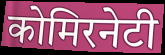
कोमिरनेटी